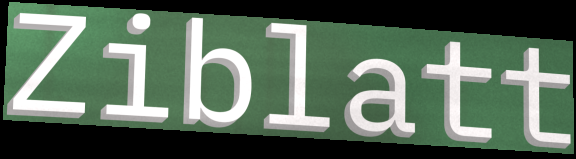
Ziblatt